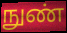
நுண்